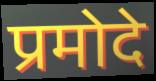
प्रमोदे